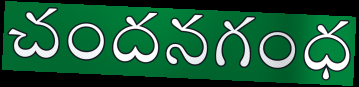
చందనగంధ